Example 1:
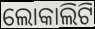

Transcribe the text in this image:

ଲୋକାଲିଟି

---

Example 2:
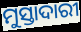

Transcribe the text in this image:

ମୁସ୍ତାଦାରୀ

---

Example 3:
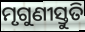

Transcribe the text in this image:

ମୃଗୁଣୀସ୍ତୁତି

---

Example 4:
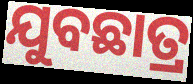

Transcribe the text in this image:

ଯୁବଛାତ୍ର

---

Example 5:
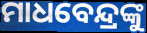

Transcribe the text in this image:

ମାଧବେନ୍ଦ୍ରଙ୍କୁ